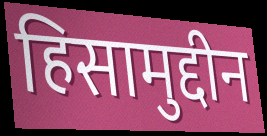
हिसामुद्दीन